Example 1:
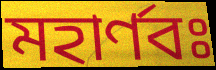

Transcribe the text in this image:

মহার্ণবঃ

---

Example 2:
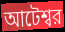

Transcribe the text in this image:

আটেশ্বর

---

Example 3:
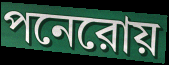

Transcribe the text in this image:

পনেরোয়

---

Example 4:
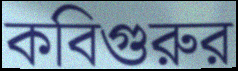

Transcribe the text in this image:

কবিগুরুর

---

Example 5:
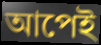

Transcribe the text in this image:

আপেই